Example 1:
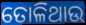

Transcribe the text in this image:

ତୋଳିଥାଉ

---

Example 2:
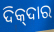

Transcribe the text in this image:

ଦିକ୍‍ଦାର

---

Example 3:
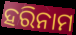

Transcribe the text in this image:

ହରିନାମ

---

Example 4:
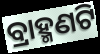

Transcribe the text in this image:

ବ୍ରାହ୍ମଣଟି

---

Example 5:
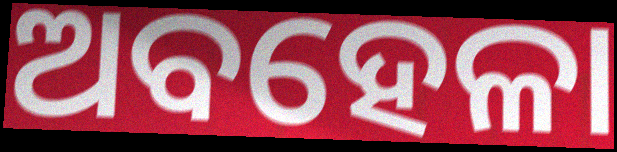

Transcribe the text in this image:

ଅବହେଳା